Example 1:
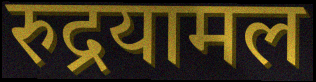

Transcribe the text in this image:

रुद्रयामल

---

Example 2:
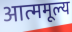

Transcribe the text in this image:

आत्ममूल्य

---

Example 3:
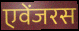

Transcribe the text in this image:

एवेंजरस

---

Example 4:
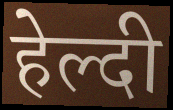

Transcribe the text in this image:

हेल्दी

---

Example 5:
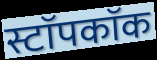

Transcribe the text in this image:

स्टॉपकॉक